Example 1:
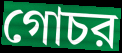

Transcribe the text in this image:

গোচর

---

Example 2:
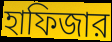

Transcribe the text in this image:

হাফিজার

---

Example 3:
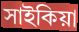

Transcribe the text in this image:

সাইকিয়া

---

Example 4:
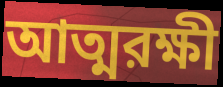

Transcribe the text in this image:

আত্মরক্ষী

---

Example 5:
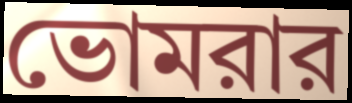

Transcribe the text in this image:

ভোমরার